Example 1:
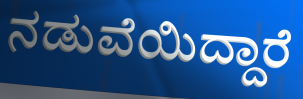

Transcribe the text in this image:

ನಡುವೆಯಿದ್ದಾರೆ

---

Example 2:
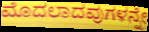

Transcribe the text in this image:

ಮೊದಲಾದವುಗಳನ್ನೇ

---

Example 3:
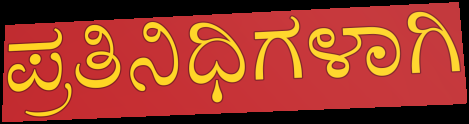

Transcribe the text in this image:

ಪ್ರತಿನಿಧಿಗಳಾಗಿ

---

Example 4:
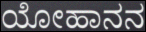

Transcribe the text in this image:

ಯೋಹಾನನ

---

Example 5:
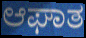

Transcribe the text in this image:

ಆಘಾತ